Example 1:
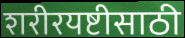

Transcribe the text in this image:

शरीरयष्टीसाठी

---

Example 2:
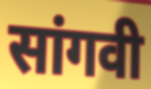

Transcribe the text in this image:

सांगवी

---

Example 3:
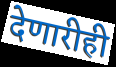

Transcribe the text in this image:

देणारीही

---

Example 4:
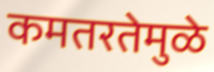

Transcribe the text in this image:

कमतरतेमुळे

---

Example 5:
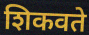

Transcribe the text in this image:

शिकवते